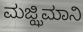
ಮಜ್ಝಿಮಾನಿ